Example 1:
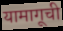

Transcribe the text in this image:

यामागूची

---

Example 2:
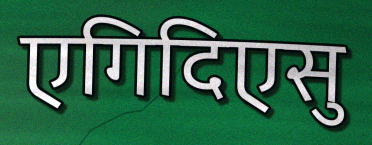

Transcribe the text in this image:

एगिदिएसु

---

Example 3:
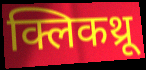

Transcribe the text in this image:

क्लिकथ्रू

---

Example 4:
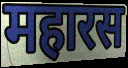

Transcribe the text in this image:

महारस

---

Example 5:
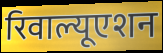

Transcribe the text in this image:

रिवाल्यूएशन